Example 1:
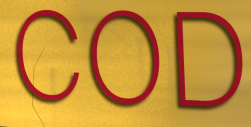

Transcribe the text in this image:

COD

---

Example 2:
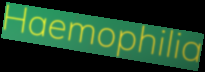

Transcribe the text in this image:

Haemophilia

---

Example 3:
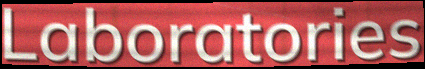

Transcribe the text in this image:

Laboratories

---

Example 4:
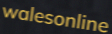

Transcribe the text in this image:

walesonline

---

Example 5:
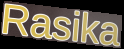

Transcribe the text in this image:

Rasika